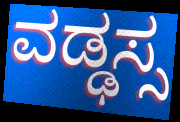
ವಡ್ಢಸ್ಸ